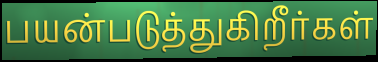
பயன்படுத்துகிறீர்கள்